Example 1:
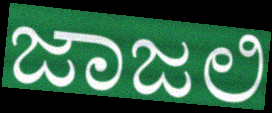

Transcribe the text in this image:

ಜಾಜಲಿ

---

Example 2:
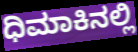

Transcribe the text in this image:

ಧಿಮಾಕಿನಲ್ಲಿ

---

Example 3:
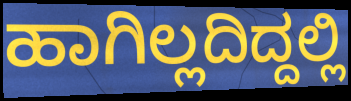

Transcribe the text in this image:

ಹಾಗಿಲ್ಲದಿದ್ದಲ್ಲಿ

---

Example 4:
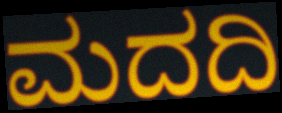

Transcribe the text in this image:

ಮದದಿ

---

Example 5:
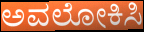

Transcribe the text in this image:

ಅವಲೋಕಿಸಿ